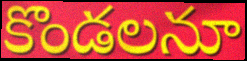
కొండలనూ